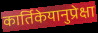
कार्तिकेयानुप्रेक्षा